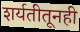
शर्यतीतूनही